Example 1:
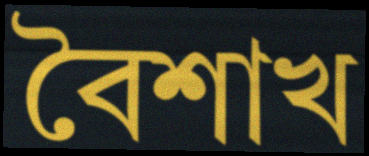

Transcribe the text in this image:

বৈশাখ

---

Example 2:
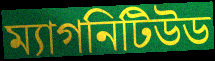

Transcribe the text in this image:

ম্যাগনিটিউড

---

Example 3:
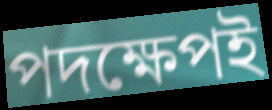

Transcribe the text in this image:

পদক্ষেপই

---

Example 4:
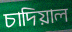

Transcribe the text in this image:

চাদিয়াল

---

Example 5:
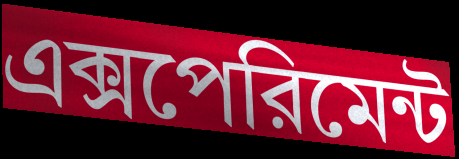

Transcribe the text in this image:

এক্সপেরিমেন্ট